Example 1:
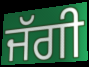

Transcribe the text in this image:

ਜੱਗੀ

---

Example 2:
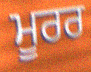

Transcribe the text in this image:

ਮੂਰਰ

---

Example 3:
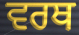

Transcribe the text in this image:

ਵਰਥ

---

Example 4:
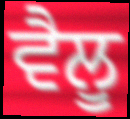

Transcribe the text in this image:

ਵੈਲੂ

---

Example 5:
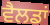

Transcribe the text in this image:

ਵੈਲਡਾਂ